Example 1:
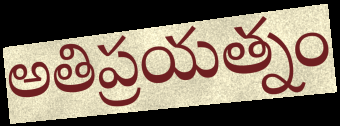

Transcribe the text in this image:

అతిప్రయత్నం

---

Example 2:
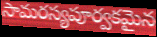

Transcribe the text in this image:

సామరస్యపూర్వకమైన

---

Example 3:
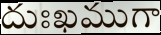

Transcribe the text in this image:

దుఃఖముగా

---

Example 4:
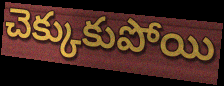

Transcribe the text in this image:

చెక్కుకుపోయి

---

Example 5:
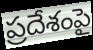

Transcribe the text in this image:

ప్రదేశంపై